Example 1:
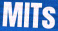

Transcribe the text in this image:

MITs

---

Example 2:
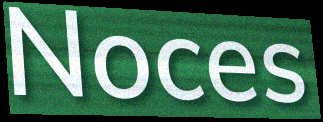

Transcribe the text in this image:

Noces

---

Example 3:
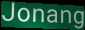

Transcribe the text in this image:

Jonang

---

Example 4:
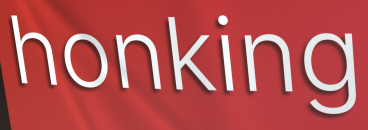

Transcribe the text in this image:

honking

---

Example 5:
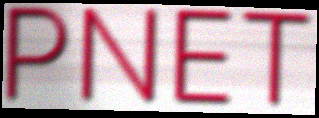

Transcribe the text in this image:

PNET